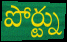
పోర్ట్ను